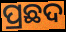
ପ୍ରଛଦ